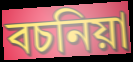
বচনিয়া